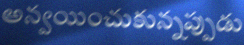
అన్వయించుకున్నప్పుడు